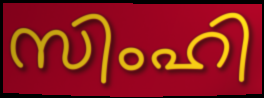
സിംഹി